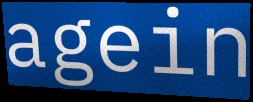
agein